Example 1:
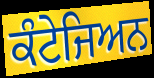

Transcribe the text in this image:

ਕੰਟੇਜਿਅਨ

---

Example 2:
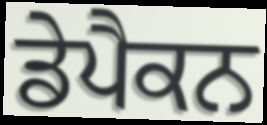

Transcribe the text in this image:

ਡੇਪੈਕਨ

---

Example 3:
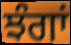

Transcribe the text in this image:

ਝੰਗਾਂ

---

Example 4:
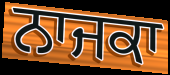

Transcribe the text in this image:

ਨਾਜਕਾ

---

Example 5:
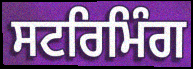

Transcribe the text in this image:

ਸਟਰਿਮਿੰਗ